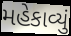
મહેકાવ્યું